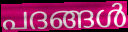
പദങ്ങൾ